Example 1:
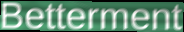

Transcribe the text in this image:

Betterment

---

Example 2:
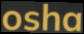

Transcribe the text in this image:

osha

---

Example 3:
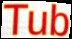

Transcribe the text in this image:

Tub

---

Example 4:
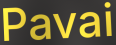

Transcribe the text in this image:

Pavai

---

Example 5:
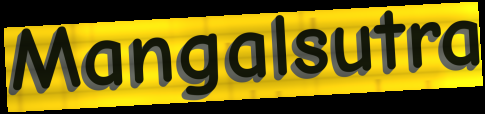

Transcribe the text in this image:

Mangalsutra